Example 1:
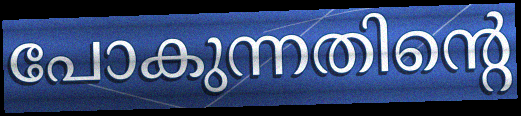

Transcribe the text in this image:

പോകുന്നതിന്റെ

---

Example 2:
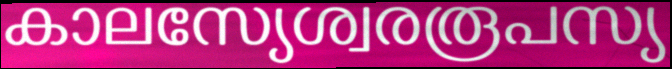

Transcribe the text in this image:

കാലസ്യേശ്വരരൂപസ്യ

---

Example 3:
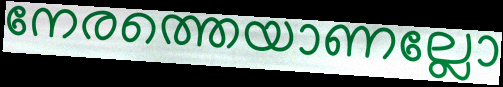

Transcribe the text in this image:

നേരത്തെയാണല്ലോ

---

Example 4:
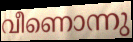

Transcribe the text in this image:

വീണൊന്നു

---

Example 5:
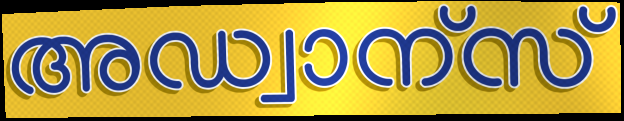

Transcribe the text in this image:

അഡ്വാന്സ്